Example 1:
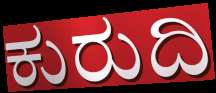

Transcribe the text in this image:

ಕುರುದಿ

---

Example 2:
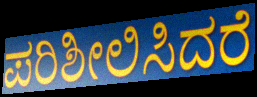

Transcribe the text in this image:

ಪರಿಶೀಲಿಸಿದರೆ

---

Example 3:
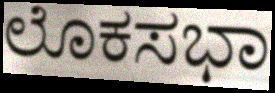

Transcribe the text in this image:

ಲೊಕಸಭಾ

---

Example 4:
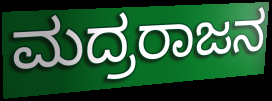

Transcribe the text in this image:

ಮದ್ರರಾಜನ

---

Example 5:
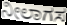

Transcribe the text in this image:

ನೀಲಾಗಸ